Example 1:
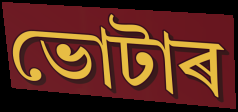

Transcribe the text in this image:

ভোটাৰ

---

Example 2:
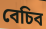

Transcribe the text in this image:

বেচিব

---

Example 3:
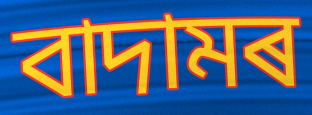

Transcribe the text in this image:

বাদামৰ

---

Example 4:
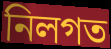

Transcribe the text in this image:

নিলগত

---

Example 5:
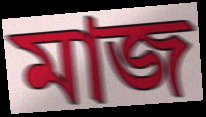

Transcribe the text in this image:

মাজ